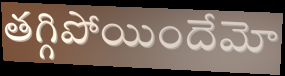
తగ్గిపోయిందేమో